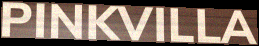
PINKVILLA